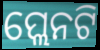
ପ୍ଲେନଟି